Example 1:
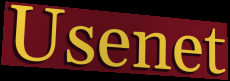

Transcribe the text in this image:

Usenet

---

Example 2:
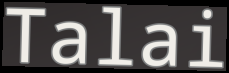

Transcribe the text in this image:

Talai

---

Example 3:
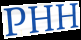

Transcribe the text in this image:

PHH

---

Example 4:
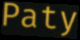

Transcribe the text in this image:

Paty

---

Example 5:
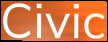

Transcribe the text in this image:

Civic